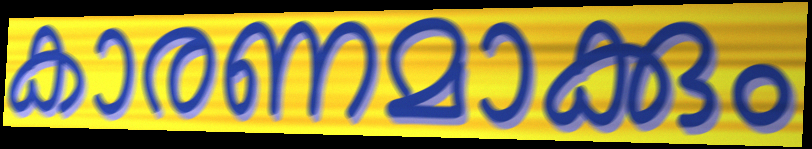
കാരണമാക്കും